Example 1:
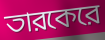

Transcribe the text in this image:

তারকেরে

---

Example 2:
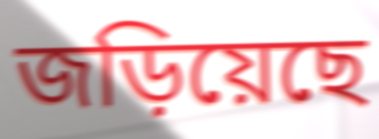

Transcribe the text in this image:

জড়িয়েছে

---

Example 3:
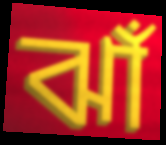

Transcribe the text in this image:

ঝাঁ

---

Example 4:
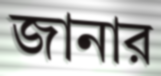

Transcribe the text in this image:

জানার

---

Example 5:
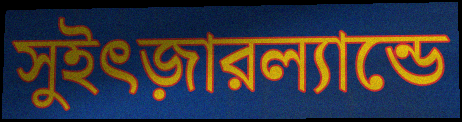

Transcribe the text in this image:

সুইৎজ়ারল্যান্ডে